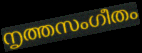
നൃത്തസംഗീതം